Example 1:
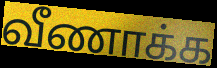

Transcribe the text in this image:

வீணாக்க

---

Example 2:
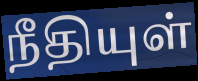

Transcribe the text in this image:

நீதியுள்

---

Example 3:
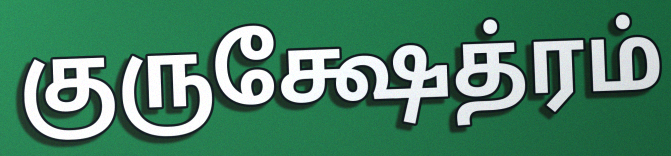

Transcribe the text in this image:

குருக்ஷேத்ரம்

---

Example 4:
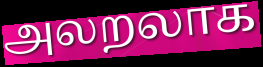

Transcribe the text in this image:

அலறலாக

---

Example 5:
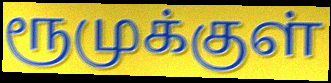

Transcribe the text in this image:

ரூமுக்குள்